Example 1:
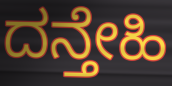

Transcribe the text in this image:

ದನ್ತೇಹಿ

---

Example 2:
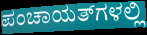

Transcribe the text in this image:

ಪಂಚಾಯತ್‌ಗಳಲ್ಲಿ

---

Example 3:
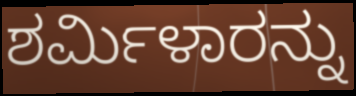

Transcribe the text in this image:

ಶರ್ಮಿಳಾರನ್ನು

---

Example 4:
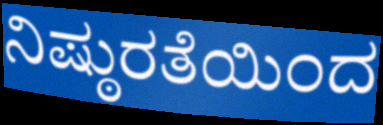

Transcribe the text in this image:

ನಿಷ್ಠುರತೆಯಿಂದ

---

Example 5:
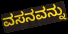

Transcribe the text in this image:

ವಸನವನ್ನು